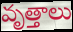
వృత్తాలు